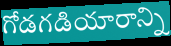
గోడగడియారాన్ని